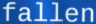
fallen